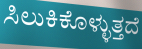
ಸಿಲುಕಿಕೊಳ್ಳುತ್ತದೆ